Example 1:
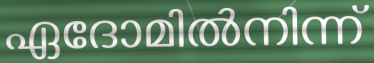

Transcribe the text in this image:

ഏദോമിൽനിന്ന്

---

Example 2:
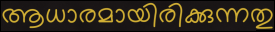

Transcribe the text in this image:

ആധാരമായിരിക്കുന്നതു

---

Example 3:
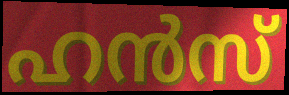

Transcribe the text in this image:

ഹൻസ്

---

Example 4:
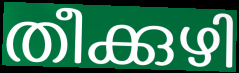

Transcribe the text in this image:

തീക്കുഴി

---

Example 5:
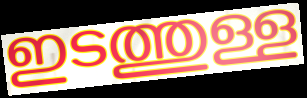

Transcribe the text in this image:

ഇടത്തുള്ള